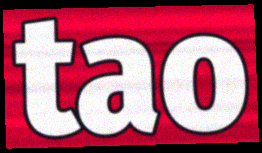
tao